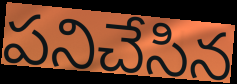
పనిచేసిన